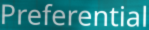
Preferential